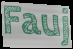
Fauj